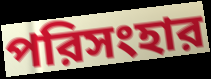
পরিসংহার